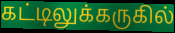
கட்டிலுக்கருகில்